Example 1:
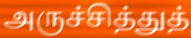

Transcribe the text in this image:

அருச்சித்துத்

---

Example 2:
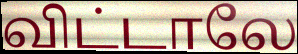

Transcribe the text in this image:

விட்டாலே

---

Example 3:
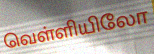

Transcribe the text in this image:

வெள்ளியிலோ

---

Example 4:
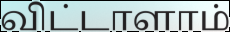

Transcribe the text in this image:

விட்டாளாம்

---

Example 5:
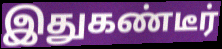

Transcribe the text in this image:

இதுகண்டீர்